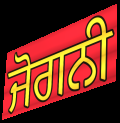
ਜੋਗਨੀ